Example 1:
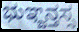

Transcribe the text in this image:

ಭುಞ್ಜನ್ತಸ್ಸ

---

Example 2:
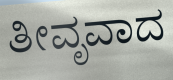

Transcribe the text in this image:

ತೀವೃವಾದ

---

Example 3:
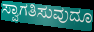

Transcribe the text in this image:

ಸ್ವಾಗತಿಸುವುದೂ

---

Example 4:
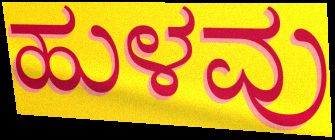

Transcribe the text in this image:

ಹುಳವು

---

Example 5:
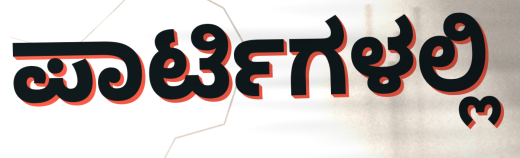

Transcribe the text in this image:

ಪಾರ್ಟಿಗಳಲ್ಲಿ